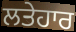
ਲਤੇਹਾਰ